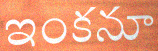
ఇంకనూ